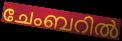
ചേംബറിൽ